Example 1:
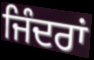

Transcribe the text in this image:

ਜਿੰਦਰਾਂ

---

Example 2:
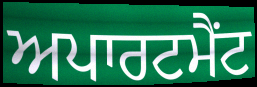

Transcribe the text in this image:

ਅਪਾਰਟਮੈਂਟ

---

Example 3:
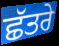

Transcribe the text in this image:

ਛੱਤਰੇ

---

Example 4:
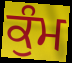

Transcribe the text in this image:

ਕੁੰਮ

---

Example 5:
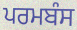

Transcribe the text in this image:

ਪਰਮਬੰਸ